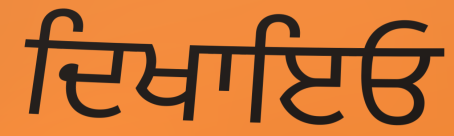
ਦਿਖਾਇਓ